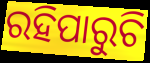
ରହିପାରୁଚି